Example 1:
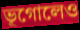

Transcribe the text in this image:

ভূগোলেও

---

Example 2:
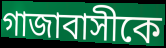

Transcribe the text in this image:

গাজাবাসীকে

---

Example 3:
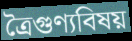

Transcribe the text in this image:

ত্রৈগুণ্যবিষয়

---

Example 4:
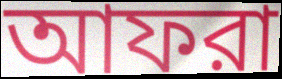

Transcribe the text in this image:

আফরা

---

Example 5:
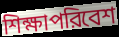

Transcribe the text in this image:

শিক্ষাপরিবেশ